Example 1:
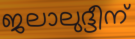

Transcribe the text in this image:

ജലാലുദ്ദീന്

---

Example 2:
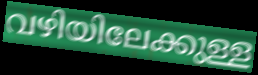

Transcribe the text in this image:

വഴിയിലേക്കുള്ള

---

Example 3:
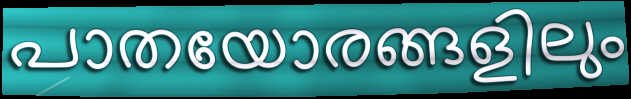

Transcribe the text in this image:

പാതയോരങ്ങളിലും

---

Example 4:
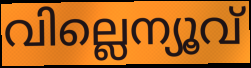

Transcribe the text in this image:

വില്ലെന്യൂവ്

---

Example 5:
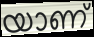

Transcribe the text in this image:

യാണ്